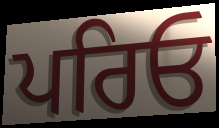
ਪਰਿਓ